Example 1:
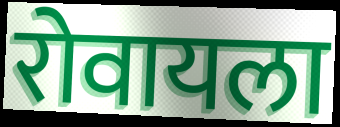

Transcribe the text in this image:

रोवायला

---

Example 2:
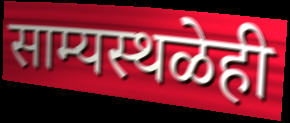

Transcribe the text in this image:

साम्यस्थळेही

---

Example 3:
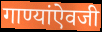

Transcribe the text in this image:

गाण्यांऐवजी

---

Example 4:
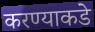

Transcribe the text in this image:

करण्याकडे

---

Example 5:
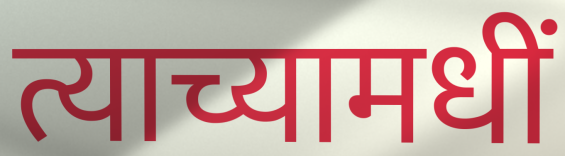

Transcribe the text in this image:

त्याच्यामधीं